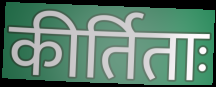
कीर्तिताः